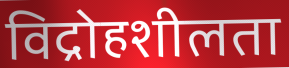
विद्रोहशीलता